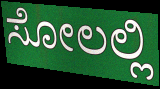
ಸೋಲಲ್ಲಿ